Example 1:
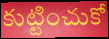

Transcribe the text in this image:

కుట్టించుకో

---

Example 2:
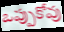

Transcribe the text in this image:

ఒప్పుకోవు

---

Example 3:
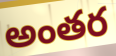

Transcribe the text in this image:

అంతర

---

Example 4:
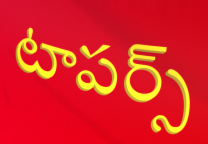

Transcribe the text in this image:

టాపర్స్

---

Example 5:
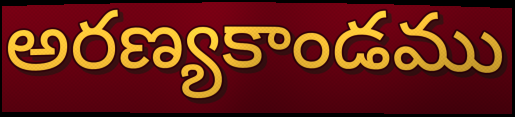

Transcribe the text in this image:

అరణ్యకాండము